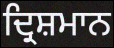
ਦ੍ਰਿਸ਼ਮਾਨ